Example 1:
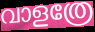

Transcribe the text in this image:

വാളത്രേ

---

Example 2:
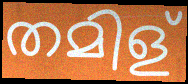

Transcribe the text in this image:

തമിള്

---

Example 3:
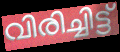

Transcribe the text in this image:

വിരിച്ചിട്ട്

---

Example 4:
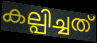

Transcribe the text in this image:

കല്പിച്ചത്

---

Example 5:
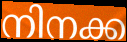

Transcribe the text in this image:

നിനക്ക